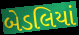
બેડલિયાં